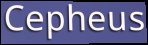
Cepheus